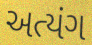
અત્યંગ